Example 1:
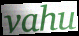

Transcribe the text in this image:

vahu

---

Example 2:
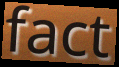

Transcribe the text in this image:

fact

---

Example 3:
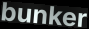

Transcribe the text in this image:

bunker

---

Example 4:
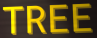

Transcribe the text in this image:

TREE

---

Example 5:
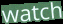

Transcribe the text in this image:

watch